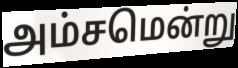
அம்சமென்று